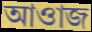
আওাজ